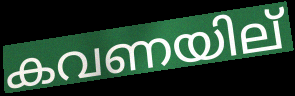
കവണയില്